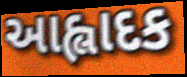
આહ્લાદક